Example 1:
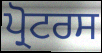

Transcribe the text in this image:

ਪ੍ਰੋਟਰਸ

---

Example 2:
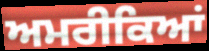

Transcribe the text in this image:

ਅਮਰੀਕਿਆਂ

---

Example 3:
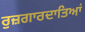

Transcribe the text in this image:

ਰੁਜ਼ਗਾਰਦਾਤਿਆਂ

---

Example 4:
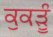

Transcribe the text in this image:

ਕੁਕੜੂੰ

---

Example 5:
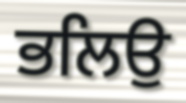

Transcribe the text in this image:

ਭਲਿਉ